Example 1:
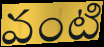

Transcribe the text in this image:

వంటి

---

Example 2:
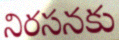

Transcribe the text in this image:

నిరసనకు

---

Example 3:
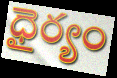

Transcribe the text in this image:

ధైర్యం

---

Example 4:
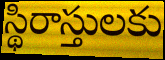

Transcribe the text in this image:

స్థిరాస్తులకు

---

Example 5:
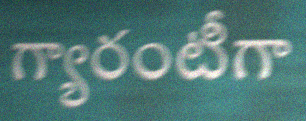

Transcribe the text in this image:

గ్యారంటీగా